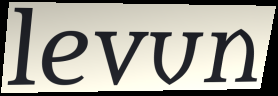
levun